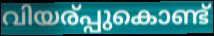
വിയര്പ്പുകൊണ്ട്